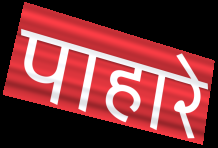
पाहारे